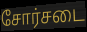
சோர்சடை